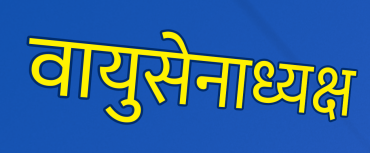
वायुसेनाध्यक्ष